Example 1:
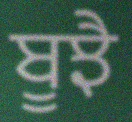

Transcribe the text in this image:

ਬੂਝੈ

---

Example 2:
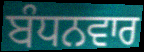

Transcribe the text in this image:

ਬੰਧਨਵਾਰ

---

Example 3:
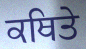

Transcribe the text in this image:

ਕਥਿਤੇ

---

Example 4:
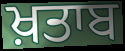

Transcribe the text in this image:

ਖ਼ਤਾਬ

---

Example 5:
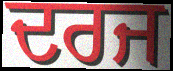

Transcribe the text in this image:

ਦਰਜ